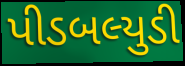
પીડબલ્યુડી